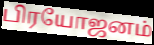
பிரயோஜனம்